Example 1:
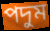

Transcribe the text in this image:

পদুম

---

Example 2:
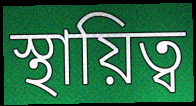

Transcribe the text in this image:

স্থায়িত্ব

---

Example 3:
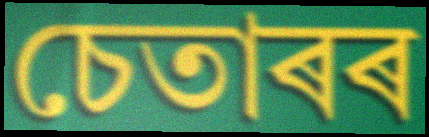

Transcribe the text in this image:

চেতাৰৰ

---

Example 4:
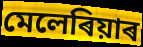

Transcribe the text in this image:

মেলেৰিয়াৰ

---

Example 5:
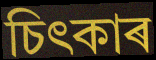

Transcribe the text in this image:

চিৎকাৰ